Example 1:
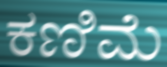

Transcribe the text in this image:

ಕಣಿಮೆ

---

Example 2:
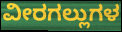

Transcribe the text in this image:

ವೀರಗಲ್ಲುಗಳ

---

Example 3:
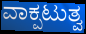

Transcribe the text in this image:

ವಾಕ್ಪಟುತ್ವ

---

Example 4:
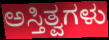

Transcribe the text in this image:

ಅಸ್ತಿತ್ವಗಳು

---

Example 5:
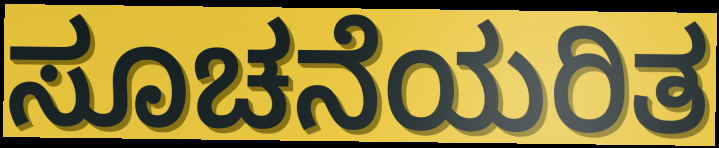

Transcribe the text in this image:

ಸೂಚನೆಯರಿತ